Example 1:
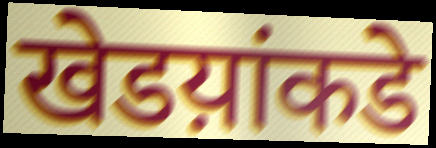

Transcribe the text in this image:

खेडय़ांकडे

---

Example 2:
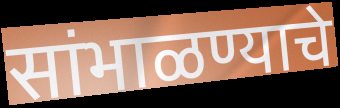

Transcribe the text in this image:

सांभाळण्याचे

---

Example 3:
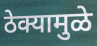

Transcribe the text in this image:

ठेक्यामुळे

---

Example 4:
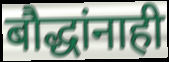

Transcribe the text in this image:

बौद्धांनाही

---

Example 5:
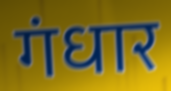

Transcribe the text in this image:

गंधार